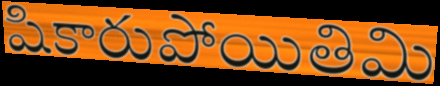
షికారుపోయితిమి